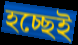
হচ্ছেই